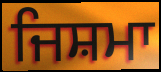
ਜਿਸ਼ਮਾ